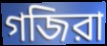
গজিরা